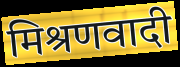
मिश्रणवादी